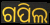
ଗପିଲ